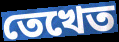
তেখেত